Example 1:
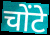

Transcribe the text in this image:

चोंटे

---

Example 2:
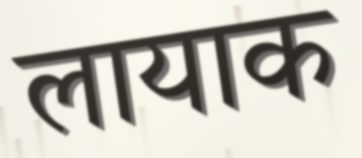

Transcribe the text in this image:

लायाक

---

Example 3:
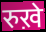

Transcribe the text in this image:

रुख़े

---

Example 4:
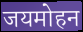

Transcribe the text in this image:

जयमोहन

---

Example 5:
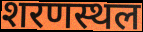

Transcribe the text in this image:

शरणस्थल